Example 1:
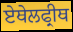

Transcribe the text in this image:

ਏਥੇਲਫ੍ਰੀਥ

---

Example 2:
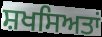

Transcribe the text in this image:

ਸ਼ਖਸਿਅਤਾਂ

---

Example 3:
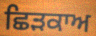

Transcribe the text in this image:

ਛਿੜਕਾਅ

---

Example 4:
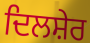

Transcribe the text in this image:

ਦਿਲਸ਼ੇਰ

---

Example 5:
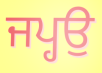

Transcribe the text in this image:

ਜਪ੍ਹਉ